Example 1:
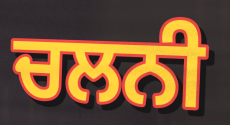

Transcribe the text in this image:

ਚਲਨੀ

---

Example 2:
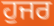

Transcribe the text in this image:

ਹੁਜਰ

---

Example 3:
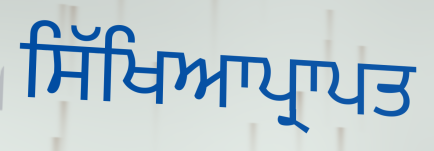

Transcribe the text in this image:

ਸਿੱਖਿਆਪ੍ਰਾਪਤ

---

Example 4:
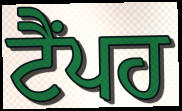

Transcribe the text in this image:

ਟੈਂਪਹ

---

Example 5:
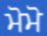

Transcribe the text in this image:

ਮੋਮੋ